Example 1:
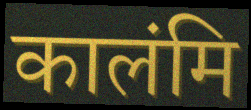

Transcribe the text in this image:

कालंमि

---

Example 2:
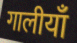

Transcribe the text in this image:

गालीयाँ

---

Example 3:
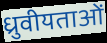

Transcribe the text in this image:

ध्रुवीयताओं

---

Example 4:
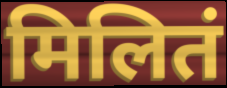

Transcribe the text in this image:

मिलितं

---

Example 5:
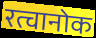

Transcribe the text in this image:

रत्चानोक